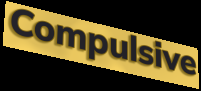
Compulsive